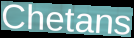
Chetans